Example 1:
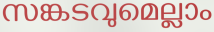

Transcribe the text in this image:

സങ്കടവുമെല്ലാം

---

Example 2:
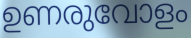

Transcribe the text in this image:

ഉണരുവോളം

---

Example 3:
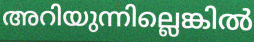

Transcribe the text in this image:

അറിയുന്നില്ലെങ്കിൽ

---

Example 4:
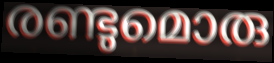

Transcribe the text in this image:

രണ്ടുമൊരു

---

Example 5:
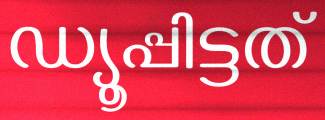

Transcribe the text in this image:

ഡ്യൂപ്പിട്ടത്